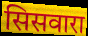
सिसवारा